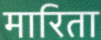
मारिता